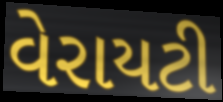
વેરાયટી